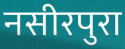
नसीरपुरा